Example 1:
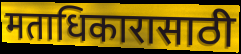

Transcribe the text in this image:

मताधिकारासाठी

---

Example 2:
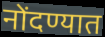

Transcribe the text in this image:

नोंदण्यात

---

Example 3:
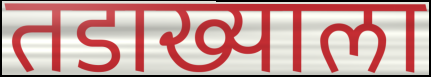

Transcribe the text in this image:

तडाख्याला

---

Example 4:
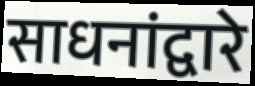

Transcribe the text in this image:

साधनांद्वारे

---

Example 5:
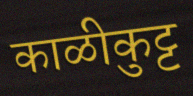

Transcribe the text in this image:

काळीकुट्ट